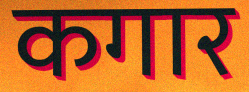
कगार